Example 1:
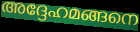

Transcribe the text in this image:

അദ്ദേഹമങ്ങനെ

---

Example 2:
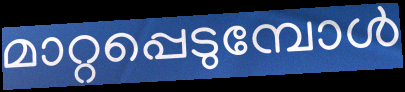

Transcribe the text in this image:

മാറ്റപ്പെടുമ്പോൾ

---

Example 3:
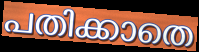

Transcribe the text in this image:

പതിക്കാതെ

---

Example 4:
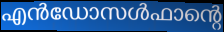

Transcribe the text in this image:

എൻഡോസൾഫാന്റെ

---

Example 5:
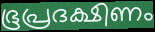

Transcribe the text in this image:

ഭൂപ്രദക്ഷിണം